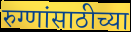
रुग्णांसाठीच्या